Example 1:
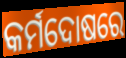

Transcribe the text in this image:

କର୍ମଦୋଷରେ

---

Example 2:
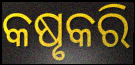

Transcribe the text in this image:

କଷୃକରି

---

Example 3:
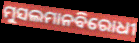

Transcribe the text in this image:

ମୁସଲମାନବିରୋଧୀ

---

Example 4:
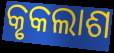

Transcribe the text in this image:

କୃକଲାଶ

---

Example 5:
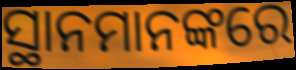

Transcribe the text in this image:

ସ୍ଥାନମାନଙ୍କରେ